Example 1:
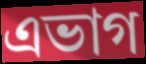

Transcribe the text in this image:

এভাগ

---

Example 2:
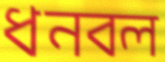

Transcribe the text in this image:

ধনবল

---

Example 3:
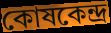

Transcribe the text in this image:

কোষকেন্দ্ৰ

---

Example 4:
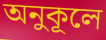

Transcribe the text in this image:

অনুকূলে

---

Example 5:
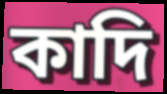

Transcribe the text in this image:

কাদি